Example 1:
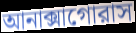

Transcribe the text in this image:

আনাক্সাগোরাস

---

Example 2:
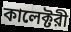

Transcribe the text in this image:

কালেক্টরী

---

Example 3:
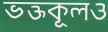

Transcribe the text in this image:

ভক্তকূলও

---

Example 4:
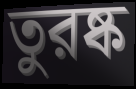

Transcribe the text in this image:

তুরষ্ক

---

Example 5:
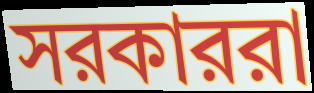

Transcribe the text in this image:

সরকাররা